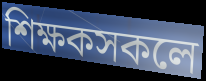
শিক্ষকসকলে